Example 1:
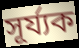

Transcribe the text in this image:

সূৰ্য্যক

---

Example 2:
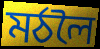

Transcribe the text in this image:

মঠলৈ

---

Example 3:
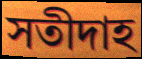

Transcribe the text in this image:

সতীদাহ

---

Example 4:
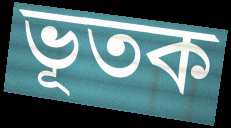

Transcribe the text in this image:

ভূতক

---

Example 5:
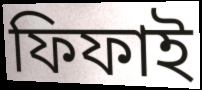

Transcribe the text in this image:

ফিফাই